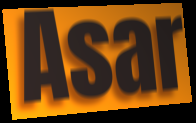
Asar